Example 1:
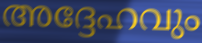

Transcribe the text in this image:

അദ്ദേഹവും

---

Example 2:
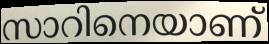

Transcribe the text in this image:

സാറിനെയാണ്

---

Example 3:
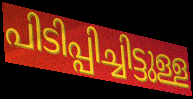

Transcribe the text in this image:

പിടിപ്പിച്ചിട്ടുള്ള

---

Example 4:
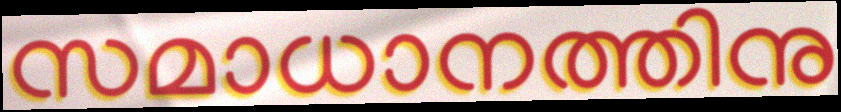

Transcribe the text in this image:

സമാധാനത്തിനു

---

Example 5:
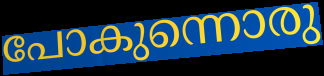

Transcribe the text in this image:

പോകുന്നൊരു